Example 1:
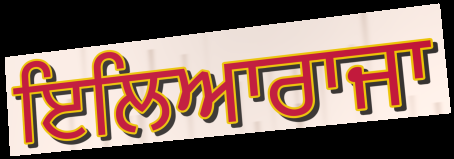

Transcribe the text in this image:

ਇਲਿਆਰਾਜਾ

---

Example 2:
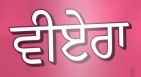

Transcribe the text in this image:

ਵੀਏਰਾ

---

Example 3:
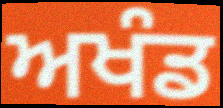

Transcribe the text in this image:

ਅਖੰਡ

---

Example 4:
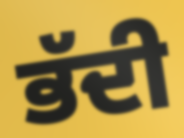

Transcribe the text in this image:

ਭੱਦੀ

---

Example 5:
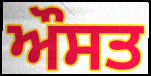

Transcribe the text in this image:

ਔਸਤ